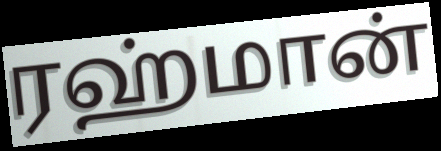
ரஹ்மான்